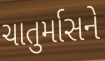
ચાતુર્માસને